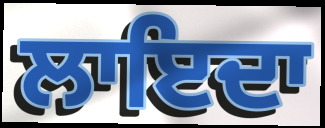
ਲਾਇਦਾ